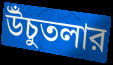
উঁচুতলার